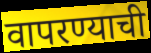
वापरण्याची